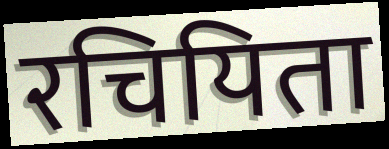
रचियिता